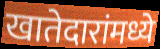
खातेदारांमध्ये